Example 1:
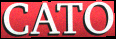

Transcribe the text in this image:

CATO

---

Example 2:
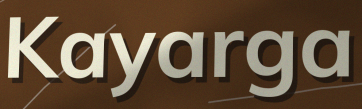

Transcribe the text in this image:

Kayarga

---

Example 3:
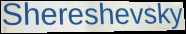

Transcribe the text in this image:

Shereshevsky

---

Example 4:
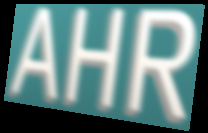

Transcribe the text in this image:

AHR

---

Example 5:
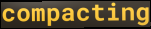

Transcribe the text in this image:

compacting